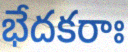
భేదకరాః